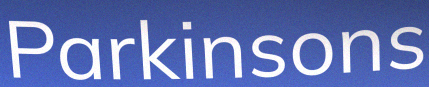
Parkinsons